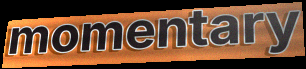
momentary